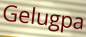
Gelugpa